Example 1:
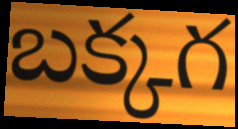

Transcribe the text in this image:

బక్కగ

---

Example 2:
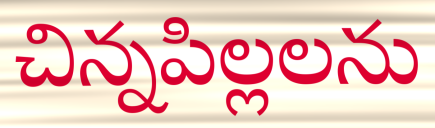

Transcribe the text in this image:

చిన్నపిల్లలను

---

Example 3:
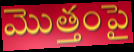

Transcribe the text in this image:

మొత్తంపై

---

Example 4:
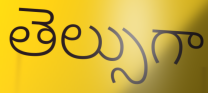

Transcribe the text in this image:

తెల్సుగా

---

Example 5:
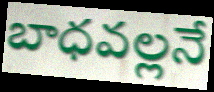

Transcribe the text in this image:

బాధవల్లనే